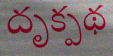
దృక్పథ